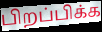
பிறப்பிக்க